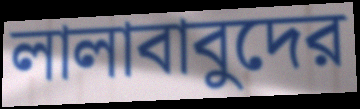
লালাবাবুদের